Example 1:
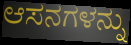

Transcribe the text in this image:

ಆಸನಗಳನ್ನು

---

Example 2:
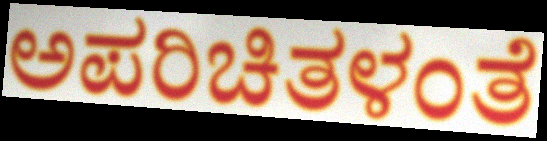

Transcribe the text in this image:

ಅಪರಿಚಿತಳಂತೆ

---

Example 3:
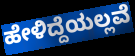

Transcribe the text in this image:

ಹೇಳಿದ್ದೆಯಲ್ಲವೆ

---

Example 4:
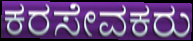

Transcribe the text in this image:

ಕರಸೇವಕರು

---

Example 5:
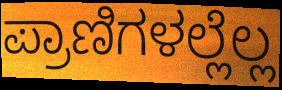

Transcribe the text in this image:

ಪ್ರಾಣಿಗಳಲ್ಲೆಲ್ಲ